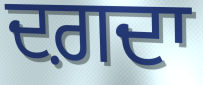
ਦਗ਼ਦਾ